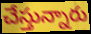
చేస్తున్నారు